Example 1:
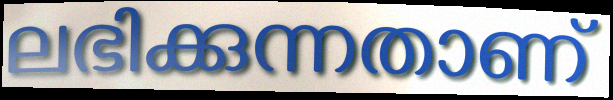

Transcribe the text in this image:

ലഭിക്കുന്നതാണ്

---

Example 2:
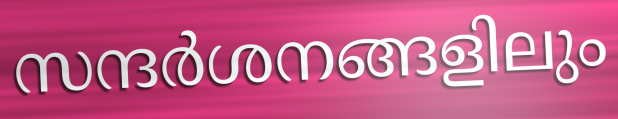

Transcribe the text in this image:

സന്ദർശനങ്ങളിലും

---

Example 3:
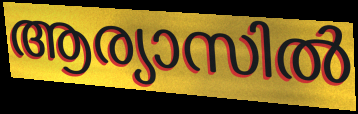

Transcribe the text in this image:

ആര്യാസിൽ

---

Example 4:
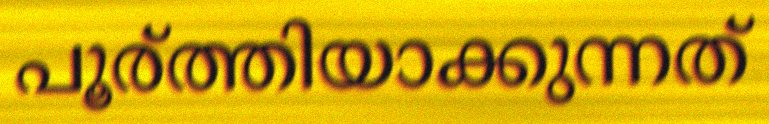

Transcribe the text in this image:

പൂര്ത്തിയാക്കുന്നത്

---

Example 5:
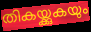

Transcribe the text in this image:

തികയ്ക്കുകയും